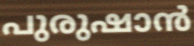
പുരുഷാൻ